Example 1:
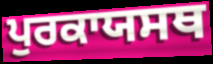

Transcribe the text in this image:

ਪੁਰਕਾਯਸਥ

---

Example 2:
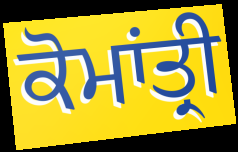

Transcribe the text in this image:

ਕੋਮਾਂਤ੍ਰੀ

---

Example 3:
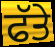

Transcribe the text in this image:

ਫੱਤੇ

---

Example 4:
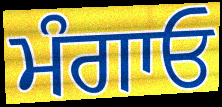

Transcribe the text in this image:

ਮੰਗਾਓ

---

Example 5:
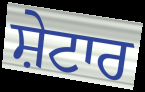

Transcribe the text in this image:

ਸ਼ੇਟਾਰ